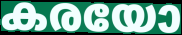
കരയോ